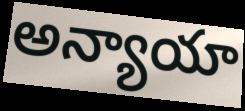
అన్యాయా